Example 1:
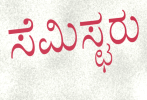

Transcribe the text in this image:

ಸೆಮಿಸ್ಟರು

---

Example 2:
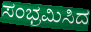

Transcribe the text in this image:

ಸಂಭ್ರಮಿಸಿದ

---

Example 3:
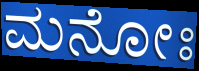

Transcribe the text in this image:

ಮನೋಃ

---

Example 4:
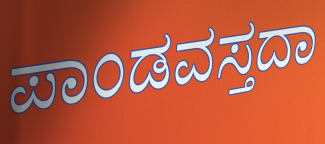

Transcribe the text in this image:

ಪಾಂಡವಸ್ತದಾ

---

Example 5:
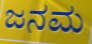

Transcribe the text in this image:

ಜನಮ